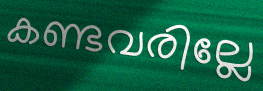
കണ്ടവരില്ലേ